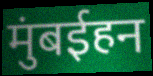
मुंबईहन